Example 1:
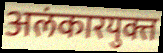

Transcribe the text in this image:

अलंकारयुक्त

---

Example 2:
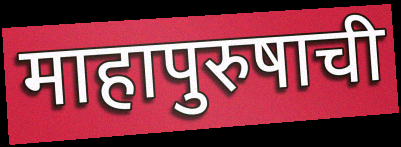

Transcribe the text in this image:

माहापुरुषाची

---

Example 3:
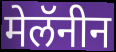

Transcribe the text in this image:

मेलॅनीन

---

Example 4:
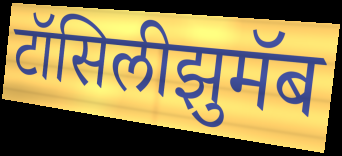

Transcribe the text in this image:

टॉसिलीझुमॅब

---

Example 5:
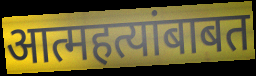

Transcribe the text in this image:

आत्महत्यांबाबत